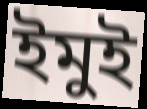
ইমুই